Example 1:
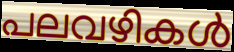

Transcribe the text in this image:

പലവഴികൾ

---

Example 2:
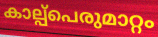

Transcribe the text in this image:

കാല്പ്പെരുമാറ്റം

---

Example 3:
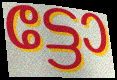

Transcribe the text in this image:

ട്ടോ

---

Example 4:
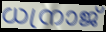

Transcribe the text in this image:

ധന്രാജ്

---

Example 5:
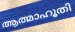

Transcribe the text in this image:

ആത്മാഹൂതി